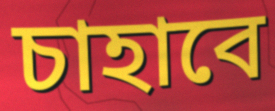
চাহাবে